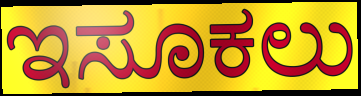
ಇಸೂಕಲು